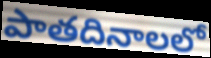
పాతదినాలలో